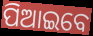
ପିଆଇବେ